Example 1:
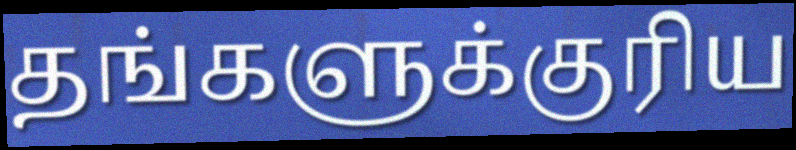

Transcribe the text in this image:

தங்களுக்குரிய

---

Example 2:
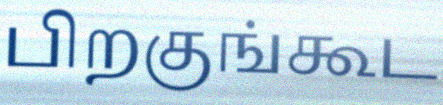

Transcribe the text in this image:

பிறகுங்கூட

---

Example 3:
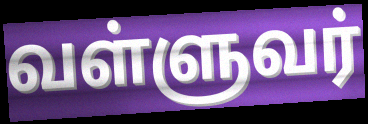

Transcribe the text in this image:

வள்ளுவர்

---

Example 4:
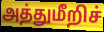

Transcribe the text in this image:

அத்துமீறிச்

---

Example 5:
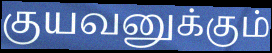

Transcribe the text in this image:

குயவனுக்கும்